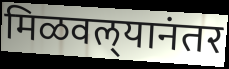
मिळवल्यानंतर